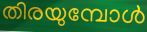
തിരയുമ്പോൾ